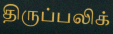
திருப்பலிக்